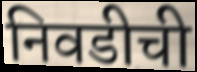
निवडीची